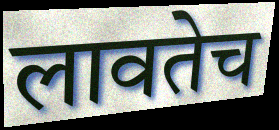
लावतेच